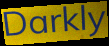
Darkly